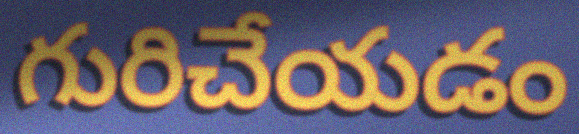
గురిచేయడం